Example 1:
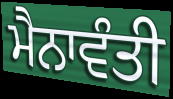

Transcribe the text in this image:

ਮੈਨਾਵੰਤੀ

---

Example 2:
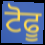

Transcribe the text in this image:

ਟੋਫੂ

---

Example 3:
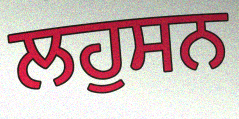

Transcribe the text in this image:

ਲਹੁਸਨ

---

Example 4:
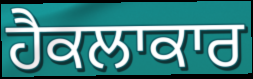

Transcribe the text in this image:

ਹੈਕਲਾਕਾਰ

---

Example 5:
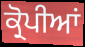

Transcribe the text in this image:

ਕ੍ਰੋਪੀਆਂ